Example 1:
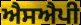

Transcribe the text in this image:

ਐਸਐਪੀ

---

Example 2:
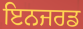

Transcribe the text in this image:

ਇਨਜਰਡ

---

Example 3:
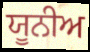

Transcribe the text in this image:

ਯੂਨੀਅ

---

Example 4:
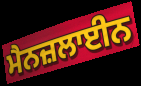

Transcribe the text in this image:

ਮੈਨਜ਼ਲਾਈਨ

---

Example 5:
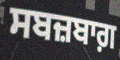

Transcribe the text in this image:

ਸਬਜ਼ਬਾਗ਼